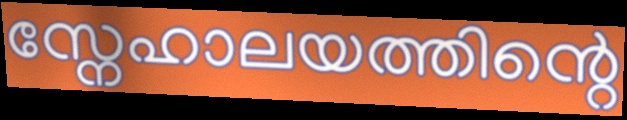
സ്നേഹാലയത്തിന്റെ